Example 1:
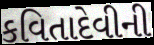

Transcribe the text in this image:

કવિતાદેવીની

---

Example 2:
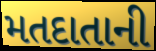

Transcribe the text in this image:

મતદાતાની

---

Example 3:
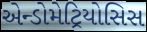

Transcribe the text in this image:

એન્ડોમેટ્રિયોસિસ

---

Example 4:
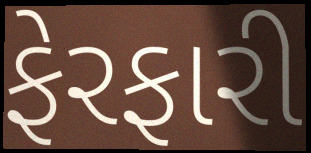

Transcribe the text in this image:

ફેરફારી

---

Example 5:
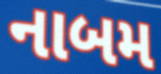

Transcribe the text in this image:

નાબમ